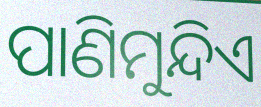
ପାଣିମୁନ୍ଦିଏ